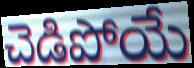
చెడిపోయే